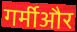
गर्मीऔर